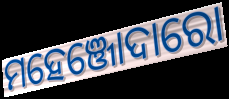
ମହେଞ୍ଜୋଦାରୋ